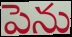
పెను